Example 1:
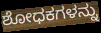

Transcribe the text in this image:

ಶೋಧಕಗಳನ್ನು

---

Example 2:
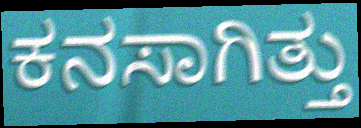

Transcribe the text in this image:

ಕನಸಾಗಿತ್ತು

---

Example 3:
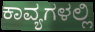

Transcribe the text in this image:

ಕಾವ್ಯಗಳಲ್ಲಿ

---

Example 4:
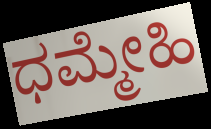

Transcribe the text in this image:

ಧಮ್ಮೇಹಿ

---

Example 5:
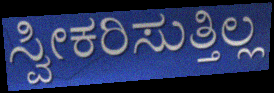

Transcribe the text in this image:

ಸ್ವೀಕರಿಸುತ್ತಿಲ್ಲ